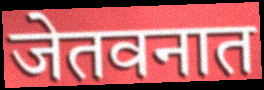
जेतवनात